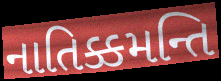
નાતિક્કમન્તિ